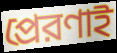
প্রেরণাই